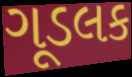
ગૂડલક